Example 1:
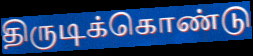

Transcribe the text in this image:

திருடிக்கொண்டு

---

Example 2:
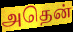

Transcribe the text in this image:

அதென்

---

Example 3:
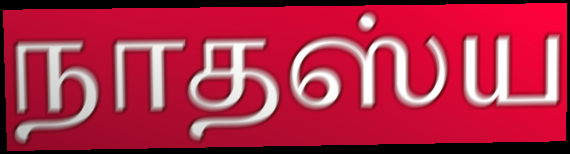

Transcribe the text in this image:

நாதஸ்ய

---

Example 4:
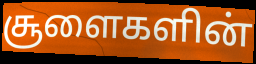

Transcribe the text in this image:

சூளைகளின்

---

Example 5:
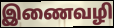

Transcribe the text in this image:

இணைவழி